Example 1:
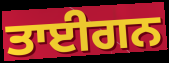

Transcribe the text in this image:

ਤਾਈਗਨ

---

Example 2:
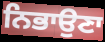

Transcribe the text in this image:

ਨਿਭਾਉਣਾ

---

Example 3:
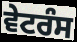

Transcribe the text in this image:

ਵੇਟਰੰਸ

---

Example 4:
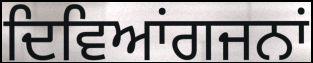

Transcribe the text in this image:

ਦਿਵਿਆਂਗਜਨਾਂ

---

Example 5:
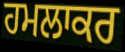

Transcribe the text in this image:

ਹਮਲਾਕਰ